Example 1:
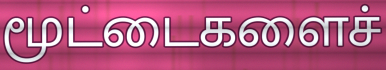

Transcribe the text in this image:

மூட்டைகளைச்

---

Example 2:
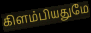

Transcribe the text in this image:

கிளம்பியதுமே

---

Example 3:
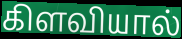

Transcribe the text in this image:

கிளவியால்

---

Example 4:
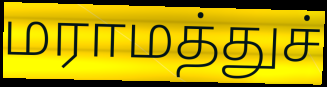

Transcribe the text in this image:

மராமத்துச்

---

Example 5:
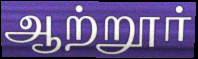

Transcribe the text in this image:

ஆற்றூர்